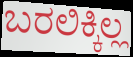
ಬರಲಿಕ್ಕಿಲ್ಲ